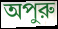
অপুরু